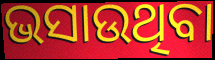
ଭସାଉଥିବା